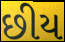
છીય